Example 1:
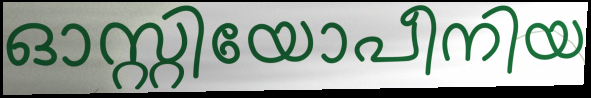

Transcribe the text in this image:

ഓസ്റ്റിയോപീനിയ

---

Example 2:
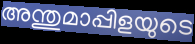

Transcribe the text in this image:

അന്തുമാപ്പിളയുടെ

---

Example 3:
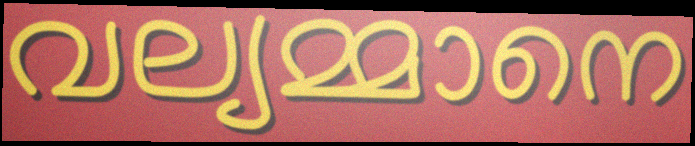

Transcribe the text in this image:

വല്യമ്മാനെ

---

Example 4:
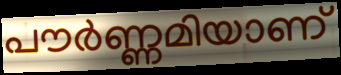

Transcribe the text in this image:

പൗർണ്ണമിയാണ്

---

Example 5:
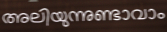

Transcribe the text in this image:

അലിയുന്നുണ്ടാവാം